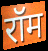
रॉम